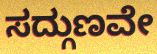
ಸದ್ಗುಣವೇ